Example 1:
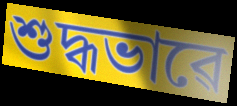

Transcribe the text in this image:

শুদ্ধভাৱে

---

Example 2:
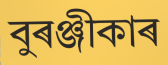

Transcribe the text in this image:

বুৰঞ্জীকাৰ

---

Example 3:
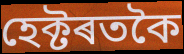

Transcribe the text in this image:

হেক্টৰতকৈ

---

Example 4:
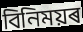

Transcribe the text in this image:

বিনিময়ৰ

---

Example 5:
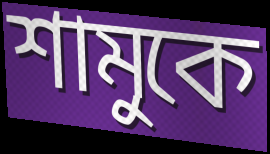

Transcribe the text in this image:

শামুকে